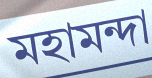
মহামন্দা